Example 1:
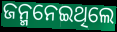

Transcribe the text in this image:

ଜନ୍ମନେଇଥିଲେ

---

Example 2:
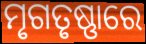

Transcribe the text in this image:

ମୃଗତୃଷ୍ଣାରେ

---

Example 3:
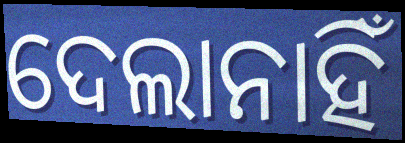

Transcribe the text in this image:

ଦେଲାନାହିଁ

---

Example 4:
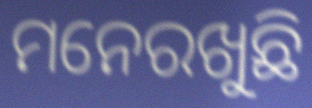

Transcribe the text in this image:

ମନେରଖୁଛି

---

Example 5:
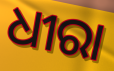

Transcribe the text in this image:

ଧୀରା